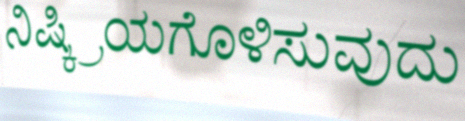
ನಿಷ್ಕ್ರಿಯಗೊಳಿಸುವುದು